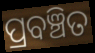
ପ୍ରବଞ୍ଚିତ